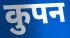
कुपन